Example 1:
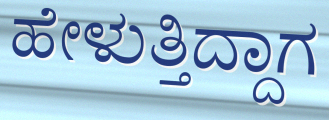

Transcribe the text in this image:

ಹೇಳುತ್ತಿದ್ದಾಗ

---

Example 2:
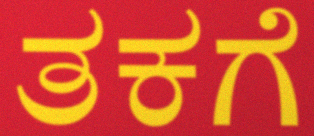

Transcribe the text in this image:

ತಕಗೆ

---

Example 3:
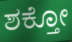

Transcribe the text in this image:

ಶಕ್ತೋ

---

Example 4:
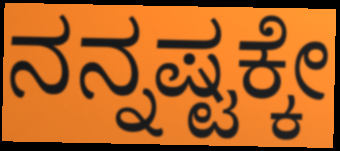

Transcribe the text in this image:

ನನ್ನಷ್ಟಕ್ಕೇ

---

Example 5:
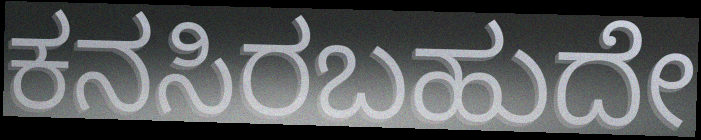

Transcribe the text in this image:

ಕನಸಿರಬಹುದೇ